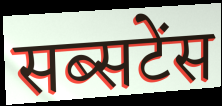
सब्सटेंस